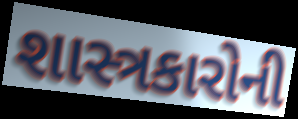
શાસ્ત્રકારોની